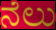
ನೆಲು